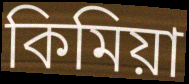
কিমিয়া